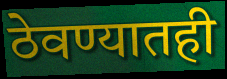
ठेवण्यातही